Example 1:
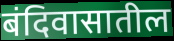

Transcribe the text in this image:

बंदिवासातील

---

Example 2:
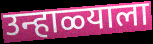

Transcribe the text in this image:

उन्हाळ्याला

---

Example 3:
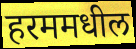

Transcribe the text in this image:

हरममधील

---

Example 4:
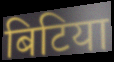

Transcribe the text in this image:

बिटिया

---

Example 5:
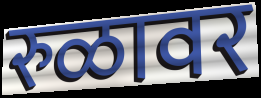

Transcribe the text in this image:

रुळावर